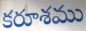
కరూశము